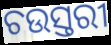
ଚଉସ୍ତରୀ